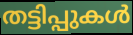
തട്ടിപ്പുകൾ